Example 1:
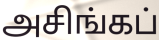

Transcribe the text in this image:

அசிங்கப்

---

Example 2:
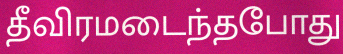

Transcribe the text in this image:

தீவிரமடைந்தபோது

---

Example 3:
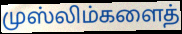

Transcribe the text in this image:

முஸ்லிம்களைத்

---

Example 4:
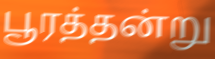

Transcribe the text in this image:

பூரத்தன்று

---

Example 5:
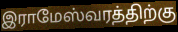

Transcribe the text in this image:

இராமேஸ்வரத்திற்கு